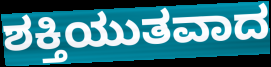
ಶಕ್ತಿಯುತವಾದ